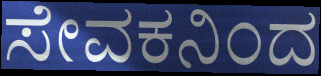
ಸೇವಕನಿಂದ